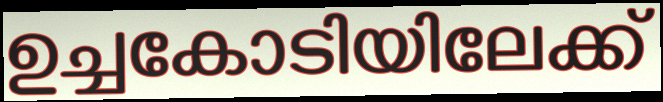
ഉച്ചകോടിയിലേക്ക്